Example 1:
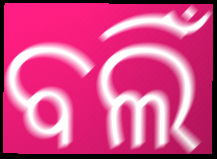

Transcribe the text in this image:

ବଲିଁ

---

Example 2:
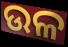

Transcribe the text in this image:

ଉଳ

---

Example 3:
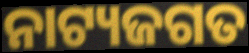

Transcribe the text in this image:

ନାଟ୍ୟଜଗତ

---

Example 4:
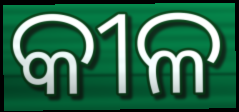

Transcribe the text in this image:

କୀଳ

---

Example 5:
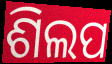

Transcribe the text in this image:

ଶିଲପ